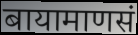
बायामाणसं